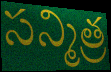
సన్మిత్ర